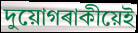
দুয়োগৰাকীয়েই